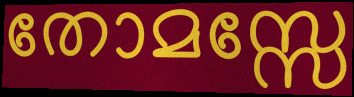
തോമസ്സേ